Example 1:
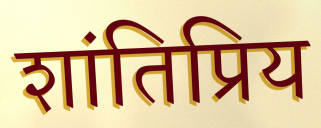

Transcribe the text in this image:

शांतिप्रिय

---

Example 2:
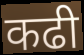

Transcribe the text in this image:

कढी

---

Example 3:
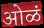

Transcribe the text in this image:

ओळं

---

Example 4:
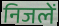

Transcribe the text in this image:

निजलें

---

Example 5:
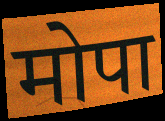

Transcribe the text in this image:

मोपा